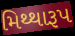
મિથ્થારૂપ